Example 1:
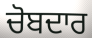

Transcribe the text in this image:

ਚੋਬਦਾਰ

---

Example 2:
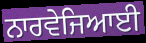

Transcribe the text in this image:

ਨਾਰਵੇਜਿਆਈ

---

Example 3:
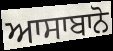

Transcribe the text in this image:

ਆਸਾਬਾਨੋ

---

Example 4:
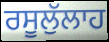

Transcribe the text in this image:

ਰਸੂਲੁੱਲਾਹ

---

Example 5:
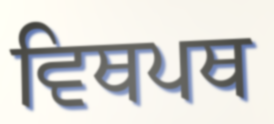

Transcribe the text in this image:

ਵਿਥਪਥ